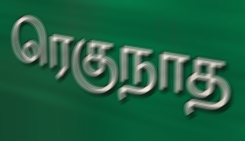
ரெகுநாத